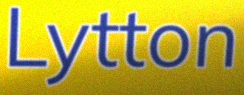
Lytton